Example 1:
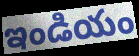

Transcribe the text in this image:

ఇండియం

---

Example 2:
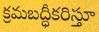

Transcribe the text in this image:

క్రమబద్ధీకరిస్తూ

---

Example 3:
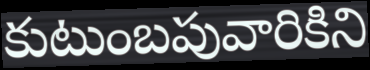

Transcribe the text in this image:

కుటుంబపువారికిని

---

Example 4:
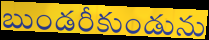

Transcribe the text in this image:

బుండరీకుండును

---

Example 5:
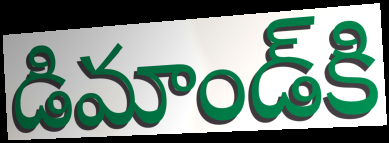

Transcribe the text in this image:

డిమాండ్‌కి